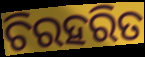
ଚିରହରିତ